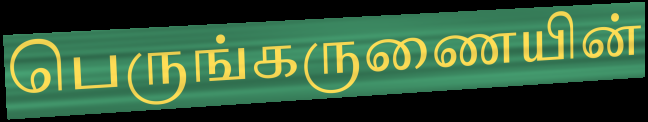
பெருங்கருணையின்